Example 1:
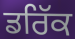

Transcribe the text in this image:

ਡਰਿੱਕ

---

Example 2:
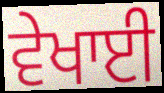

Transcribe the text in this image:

ਵੇਖਾਈ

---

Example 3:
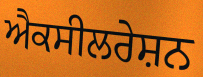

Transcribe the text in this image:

ਐਕਸੀਲਰੇਸ਼ਨ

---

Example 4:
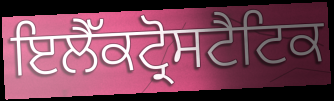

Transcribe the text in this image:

ਇਲੈੱਕਟ੍ਰੋਸਟੈਟਿਕ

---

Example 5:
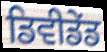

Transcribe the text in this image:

ਡਿਵੀਡੇਂਡ